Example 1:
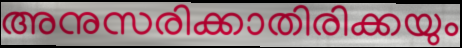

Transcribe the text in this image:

അനുസരിക്കാതിരിക്കയും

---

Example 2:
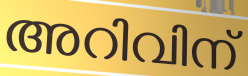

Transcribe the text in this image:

അറിവിന്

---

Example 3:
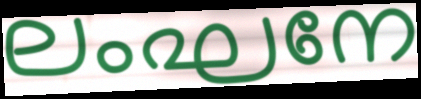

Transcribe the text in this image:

ലംഘനേ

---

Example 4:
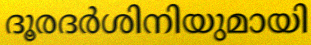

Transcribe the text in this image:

ദൂരദർശിനിയുമായി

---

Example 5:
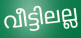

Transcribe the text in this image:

വീട്ടിലല്ല